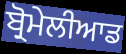
ਬ੍ਰੋਮੇਲੀਆਡ